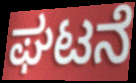
ಘಟನೆ